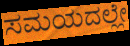
ಸಮಯದಲ್ಲೇ